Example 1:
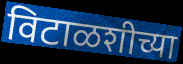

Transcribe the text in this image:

विटाळशीच्या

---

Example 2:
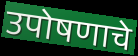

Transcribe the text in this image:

उपोषणाचे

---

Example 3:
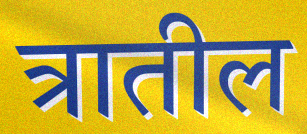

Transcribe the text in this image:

त्रातील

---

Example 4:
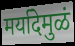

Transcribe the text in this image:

मर्यादेमुळं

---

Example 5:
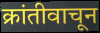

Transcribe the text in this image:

क्रांतीवाचून